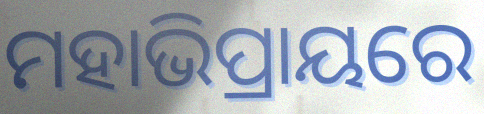
ମହାଭିପ୍ରାୟରେ